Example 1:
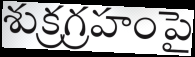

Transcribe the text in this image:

శుక్రగ్రహంపై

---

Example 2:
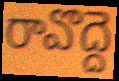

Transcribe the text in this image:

రావొద్దె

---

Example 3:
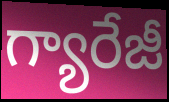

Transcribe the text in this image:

గ్యారేజీ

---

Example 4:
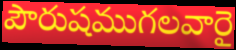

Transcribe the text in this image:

పౌరుషముగలవారై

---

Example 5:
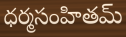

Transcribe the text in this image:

ధర్మసంహితమ్